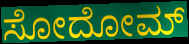
ಸೋದೋಮ್